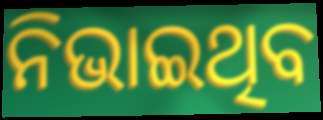
ନିଭାଇଥିବ